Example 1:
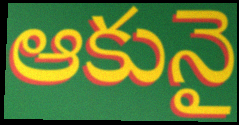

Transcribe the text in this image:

ఆకునై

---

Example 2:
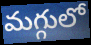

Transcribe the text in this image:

మగ్గులో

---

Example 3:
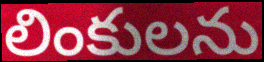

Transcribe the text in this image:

లింకులను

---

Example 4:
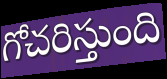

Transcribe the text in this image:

గోచరిస్తుంది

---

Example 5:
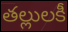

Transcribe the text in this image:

తల్లులకీ